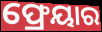
ଫ୍ରେୟାର